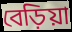
বেড়িয়া